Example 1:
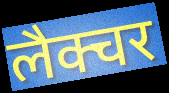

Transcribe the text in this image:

लैक्चर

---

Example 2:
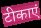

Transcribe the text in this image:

टीकाएं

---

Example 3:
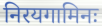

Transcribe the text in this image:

निरयगामिनः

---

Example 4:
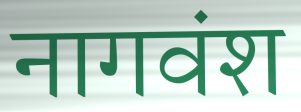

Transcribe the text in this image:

नागवंश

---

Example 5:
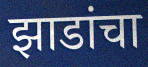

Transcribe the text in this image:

झाडांचा